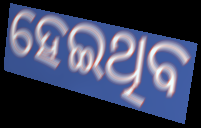
ହେଇଥିବ